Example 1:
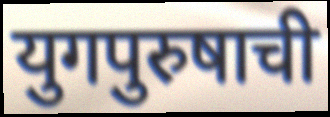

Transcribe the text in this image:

युगपुरुषाची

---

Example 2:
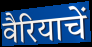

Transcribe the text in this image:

वैरियाचें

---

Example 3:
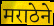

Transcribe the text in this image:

मराठेने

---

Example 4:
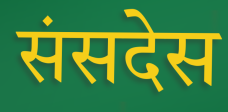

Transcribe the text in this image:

संसदेस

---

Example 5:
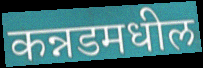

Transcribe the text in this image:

कन्नडमधील